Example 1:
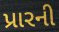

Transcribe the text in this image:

પ્રારની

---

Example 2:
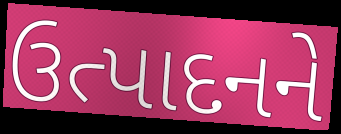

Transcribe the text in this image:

ઉત્પાદનને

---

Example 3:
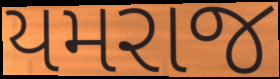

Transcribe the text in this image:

યમરાજ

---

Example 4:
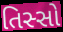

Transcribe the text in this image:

તિસ્સો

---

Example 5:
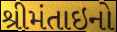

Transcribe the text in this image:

શ્રીમંતાઇનો